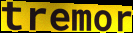
tremor